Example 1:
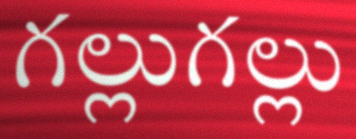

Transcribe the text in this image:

గల్లుగల్లు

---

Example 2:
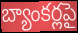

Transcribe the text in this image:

బ్యాంకర్లపై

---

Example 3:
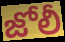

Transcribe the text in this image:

జోలీ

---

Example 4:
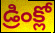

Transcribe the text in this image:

డ్రింక్లో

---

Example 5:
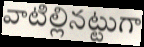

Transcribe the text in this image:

వాటిల్లినట్టుగా